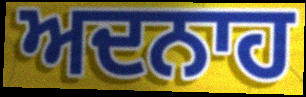
ਅਦਨਾਹ